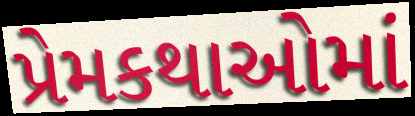
પ્રેમકથાઓમાં